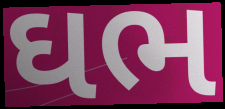
ઘભ